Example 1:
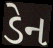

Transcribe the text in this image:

ડેન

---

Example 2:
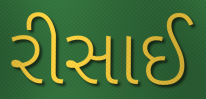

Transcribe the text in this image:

રીસાઈ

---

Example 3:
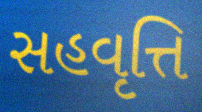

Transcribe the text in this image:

સહવૃત્તિ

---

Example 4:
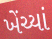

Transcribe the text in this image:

ખેંચ્યાં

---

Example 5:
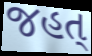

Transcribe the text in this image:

જહત્